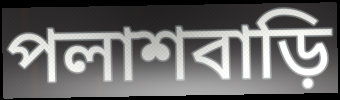
পলাশবাড়ি